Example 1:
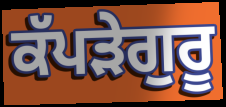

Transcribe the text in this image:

ਕੱਪੜੇਗੁਰੂ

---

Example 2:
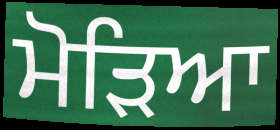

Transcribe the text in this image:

ਮੋੜਿਆ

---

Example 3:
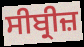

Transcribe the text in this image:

ਸੀਬ੍ਰੀਜ਼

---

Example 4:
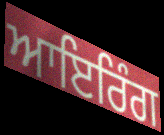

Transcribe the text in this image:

ਆਇਰਿੰਗ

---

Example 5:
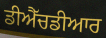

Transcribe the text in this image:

ਡੀਐੱਚਡੀਆਰ